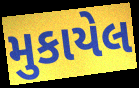
મુકાયેલ